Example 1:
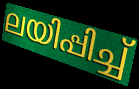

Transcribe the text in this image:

ലയിപ്പിച്ച്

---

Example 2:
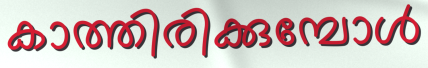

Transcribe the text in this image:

കാത്തിരിക്കുമ്പോൾ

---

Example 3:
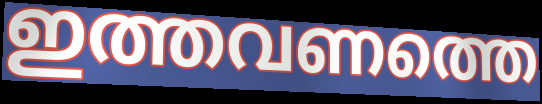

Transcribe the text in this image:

ഇത്തവണത്തെ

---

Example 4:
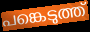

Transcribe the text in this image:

പങ്കെടുത്ത്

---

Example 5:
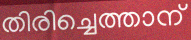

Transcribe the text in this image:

തിരിച്ചെത്താന്